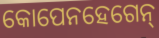
କୋପେନହେଗେନ୍